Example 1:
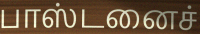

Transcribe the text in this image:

பாஸ்டனைச்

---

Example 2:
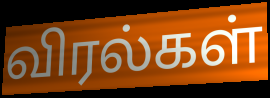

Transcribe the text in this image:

விரல்கள்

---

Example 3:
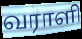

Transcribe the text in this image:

வராளி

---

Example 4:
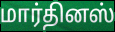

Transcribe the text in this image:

மார்தினஸ்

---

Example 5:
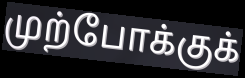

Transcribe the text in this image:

முற்போக்குக்